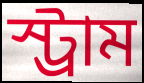
স্ট্রাম